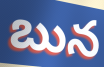
బున